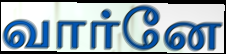
வார்னே